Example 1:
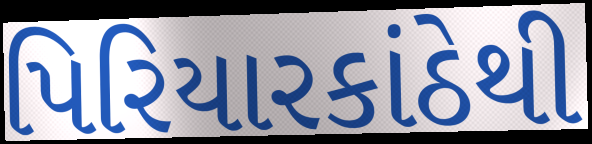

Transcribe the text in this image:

પિરિયારકાંઠેથી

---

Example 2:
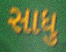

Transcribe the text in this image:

સાધુ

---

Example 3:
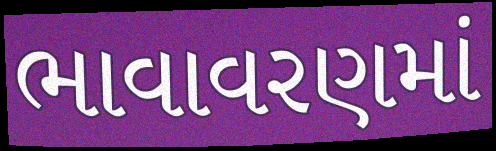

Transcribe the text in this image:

ભાવાવરણમાં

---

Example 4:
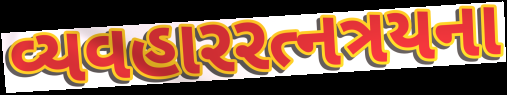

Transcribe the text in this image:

વ્યવહારરત્નત્રયના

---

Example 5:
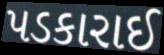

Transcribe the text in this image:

પડકારાઈ